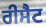
ਰੀਸੈਟ